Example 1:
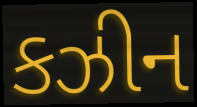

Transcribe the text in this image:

કઝીન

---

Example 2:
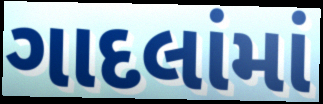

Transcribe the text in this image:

ગાદલાંમાં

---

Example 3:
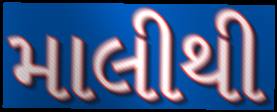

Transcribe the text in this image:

માલીથી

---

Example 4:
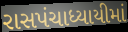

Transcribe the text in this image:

રાસપંચાધ્યાયીમાં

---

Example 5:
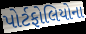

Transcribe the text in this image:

પોર્ટફોલિયોના